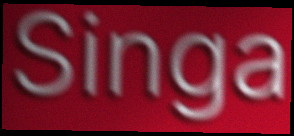
Singa